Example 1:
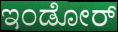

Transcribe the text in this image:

ಇಂಡೋರ್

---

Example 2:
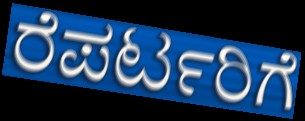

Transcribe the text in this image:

ರೆಪರ್ಟರಿಗೆ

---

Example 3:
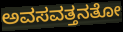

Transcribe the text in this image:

ಅವಸವತ್ತನತೋ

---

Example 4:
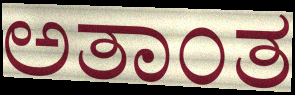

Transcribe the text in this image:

ಅತಾಂತ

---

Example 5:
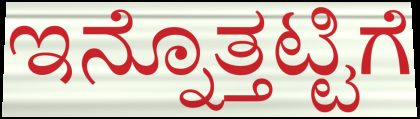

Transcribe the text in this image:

ಇನ್ನೊತ್ತಟ್ಟಿಗೆ